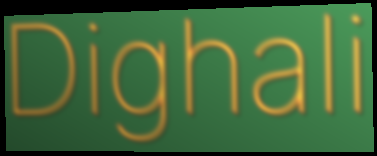
Dighali